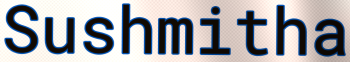
Sushmitha